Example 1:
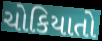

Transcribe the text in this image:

ચોકિયાતો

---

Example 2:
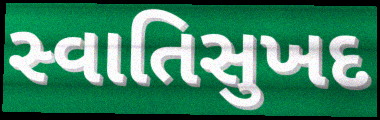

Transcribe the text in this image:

સ્વાતિસુખદ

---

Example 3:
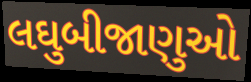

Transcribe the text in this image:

લઘુબીજાણુઓ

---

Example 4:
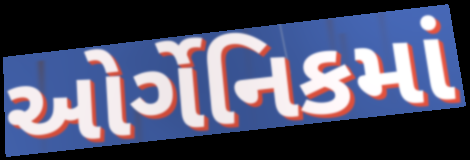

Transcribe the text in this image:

ઓર્ગેનિકમાં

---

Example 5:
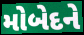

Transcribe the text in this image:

મોબેદને